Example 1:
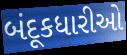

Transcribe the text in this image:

બંદૂકધારીઓ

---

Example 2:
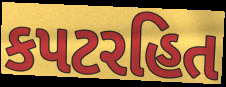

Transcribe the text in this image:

કપટરહિત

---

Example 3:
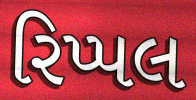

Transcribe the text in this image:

રિપ્પલ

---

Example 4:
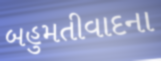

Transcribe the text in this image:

બહુમતીવાદના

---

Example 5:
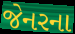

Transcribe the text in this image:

જેનરના